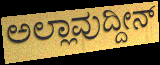
ಅಲ್ಲಾವುದ್ದೀನ್